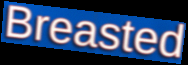
Breasted